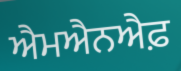
ਐਮਐਨਐਫ਼